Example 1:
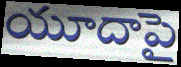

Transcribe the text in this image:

యూదాపై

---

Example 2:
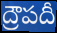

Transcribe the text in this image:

ద్రౌపదీ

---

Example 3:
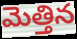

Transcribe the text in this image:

మెత్తిన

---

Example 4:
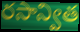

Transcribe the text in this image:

రసాన్విత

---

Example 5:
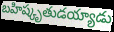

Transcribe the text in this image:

బహిష్కృతుడయ్యాడు